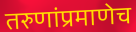
तरुणांप्रमाणेच